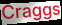
Craggs